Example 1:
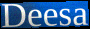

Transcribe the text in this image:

Deesa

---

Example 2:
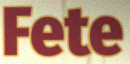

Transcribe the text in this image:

Fete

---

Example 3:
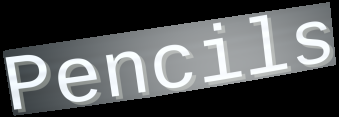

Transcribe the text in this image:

Pencils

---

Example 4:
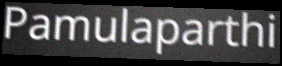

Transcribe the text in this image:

Pamulaparthi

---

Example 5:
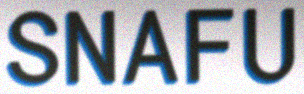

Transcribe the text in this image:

SNAFU